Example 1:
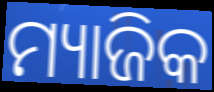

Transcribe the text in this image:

ମ୍ୟାଜିକ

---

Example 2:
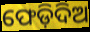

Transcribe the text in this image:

ଫେଡ଼ିଦିଅ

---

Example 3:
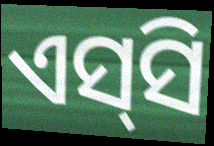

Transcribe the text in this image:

ଏସ୍‍ସି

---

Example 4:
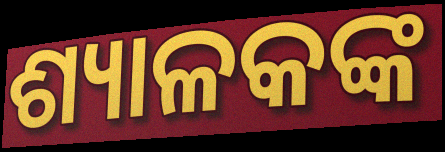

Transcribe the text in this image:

ଶ୍ୟାଳକଙ୍କ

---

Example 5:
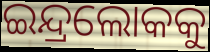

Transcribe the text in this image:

ଇନ୍ଦ୍ରଲୋକକୁ